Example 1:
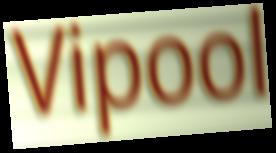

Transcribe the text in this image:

Vipool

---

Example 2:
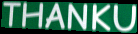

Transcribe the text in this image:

THANKU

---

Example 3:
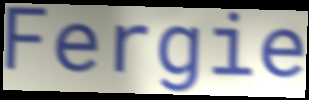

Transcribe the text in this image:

Fergie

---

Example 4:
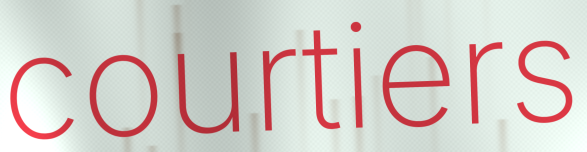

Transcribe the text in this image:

courtiers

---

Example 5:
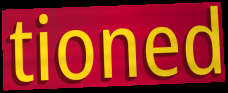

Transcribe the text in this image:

tioned